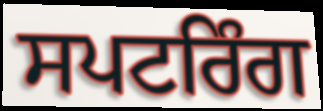
ਸਪਟਰਿੰਗ